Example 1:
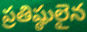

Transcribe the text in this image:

ప్రతిష్ఠులైన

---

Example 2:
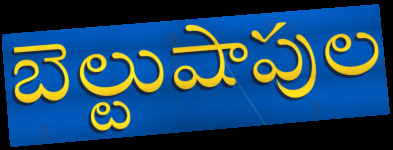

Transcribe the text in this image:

బెల్టుషాపుల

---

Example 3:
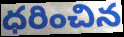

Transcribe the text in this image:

ధరించిన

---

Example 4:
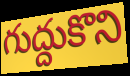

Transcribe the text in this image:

గుద్దుకొని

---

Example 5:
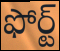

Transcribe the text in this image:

ఫోర్ట్